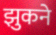
झुकने